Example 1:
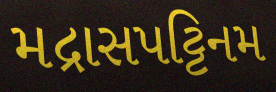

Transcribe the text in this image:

મદ્રાસપટ્ટિનમ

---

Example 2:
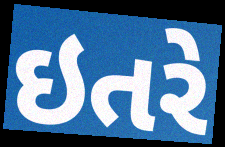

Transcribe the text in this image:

ઇતરે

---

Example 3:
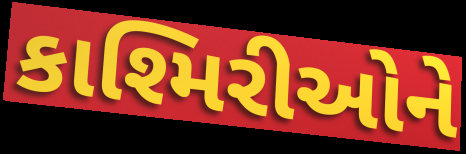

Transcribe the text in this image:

કાશ્મિરીઓને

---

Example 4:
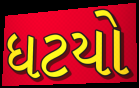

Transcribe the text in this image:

ધટયો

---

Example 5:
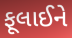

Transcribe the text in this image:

ફૂલાઈને